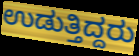
ಉಡುತ್ತಿದ್ದರು